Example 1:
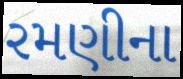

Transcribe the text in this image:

રમણીના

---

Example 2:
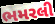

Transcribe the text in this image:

ભમરલી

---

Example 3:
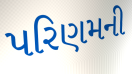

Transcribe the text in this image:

પરિણમની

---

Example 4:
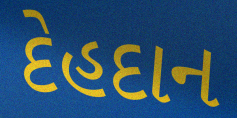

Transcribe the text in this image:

દેહદાન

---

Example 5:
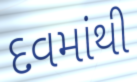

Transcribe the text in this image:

દવમાંથી